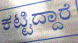
ಕಟ್ಟಿದ್ದಾರೆ